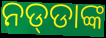
ନଡ୍‌ଡାଙ୍କ